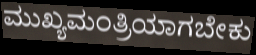
ಮುಖ್ಯಮಂತ್ರಿಯಾಗಬೇಕು